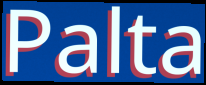
Palta